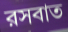
রসবাত